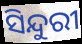
ସିନ୍ଦୁରୀ